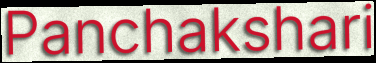
Panchakshari